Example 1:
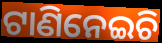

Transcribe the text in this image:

ଟାଣିନେଇଚି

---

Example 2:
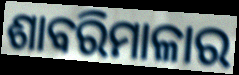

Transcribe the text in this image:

ଶାବରିମାଳାର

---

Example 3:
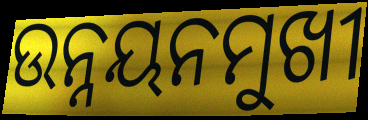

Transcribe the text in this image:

ଉନ୍ନୟନମୁଖୀ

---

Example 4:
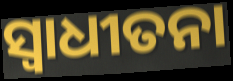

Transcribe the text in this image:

ସ୍ବାଧୀତନା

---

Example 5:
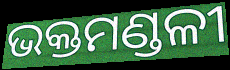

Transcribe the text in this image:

ଭକ୍ତମଣ୍ଡଳୀ